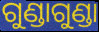
ଗୁଣ୍ଡାଗୁଣ୍ଡା